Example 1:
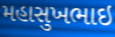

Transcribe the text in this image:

મહાસુખભાઇ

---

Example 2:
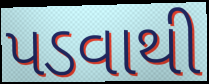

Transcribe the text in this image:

પડવાથી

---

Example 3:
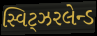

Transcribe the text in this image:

સ્વિટ્ઝરલેન્ડ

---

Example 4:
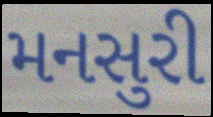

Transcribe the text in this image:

મનસુરી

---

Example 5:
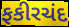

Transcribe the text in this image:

ફકીરચંદ